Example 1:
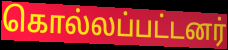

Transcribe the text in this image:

கொல்லப்பட்டனர்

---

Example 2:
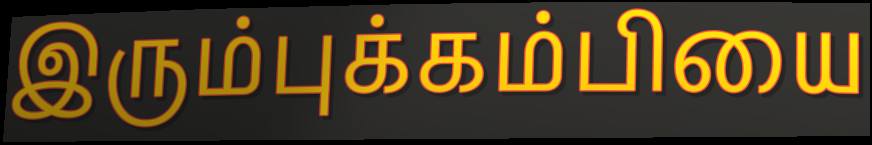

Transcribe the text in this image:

இரும்புக்கம்பியை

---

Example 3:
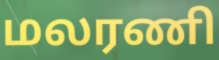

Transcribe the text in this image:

மலரணி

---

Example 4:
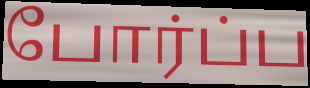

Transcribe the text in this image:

போர்ப்ப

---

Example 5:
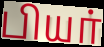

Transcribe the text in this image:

பியர்